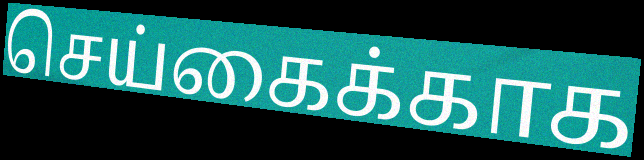
செய்கைக்காக